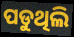
ପଡୁଥିଲି